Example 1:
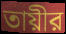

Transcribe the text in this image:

তায়ীর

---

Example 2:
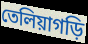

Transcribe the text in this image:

তেলিয়াগড়ি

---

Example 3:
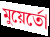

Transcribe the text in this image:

মুয়ের্তো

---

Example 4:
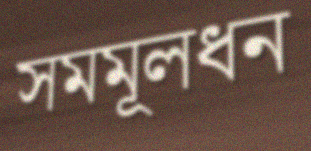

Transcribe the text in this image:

সমমূলধন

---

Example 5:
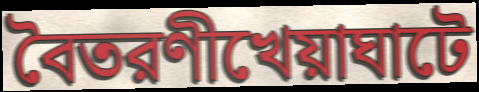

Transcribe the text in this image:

বৈতরণীখেয়াঘাটে